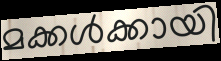
മക്കൾക്കായി